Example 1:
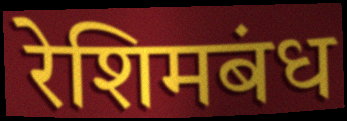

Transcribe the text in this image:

रेशिमबंध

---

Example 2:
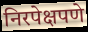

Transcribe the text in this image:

निरपेक्षपणे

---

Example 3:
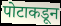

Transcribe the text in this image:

पोटाकडून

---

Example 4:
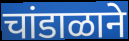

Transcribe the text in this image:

चांडाळाने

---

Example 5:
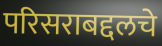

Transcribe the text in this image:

परिसराबद्दलचे